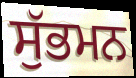
ਸੁੱਭਮਨ